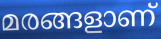
മരങ്ങളാണ്